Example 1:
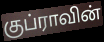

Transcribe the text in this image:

குப்ராவின்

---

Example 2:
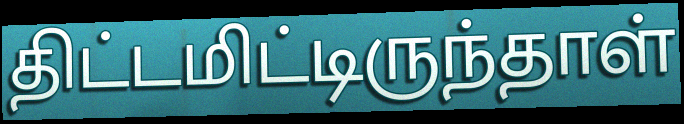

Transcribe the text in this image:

திட்டமிட்டிருந்தாள்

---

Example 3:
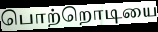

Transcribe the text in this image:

பொற்றொடியை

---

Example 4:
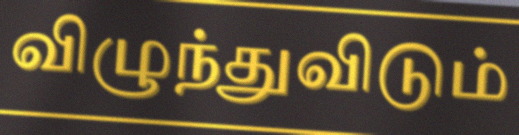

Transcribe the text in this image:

விழுந்துவிடும்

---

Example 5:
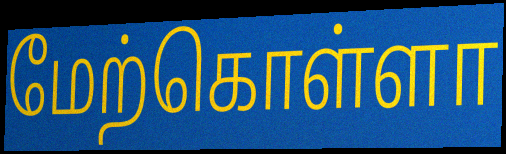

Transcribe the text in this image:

மேற்கொள்ளா